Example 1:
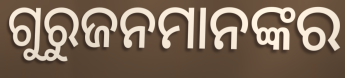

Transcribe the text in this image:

ଗୁରୁଜନମାନଙ୍କର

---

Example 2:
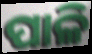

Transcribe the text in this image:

ପାଳି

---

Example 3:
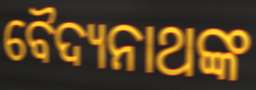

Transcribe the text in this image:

ବୈଦ୍ୟନାଥଙ୍କ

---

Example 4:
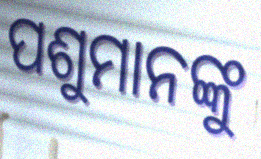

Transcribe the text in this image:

ପଶୁମାନଙ୍କୁ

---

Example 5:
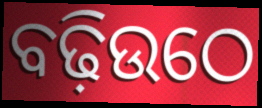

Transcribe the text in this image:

ବଢ଼ିଉଠେ